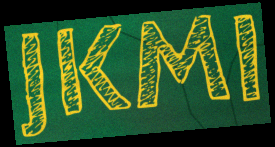
JKMI